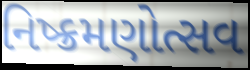
નિષ્ક્રમણોત્સવ